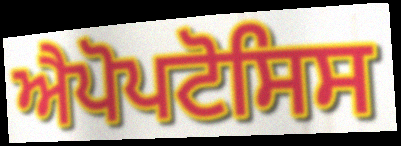
ਐਪੋਪਟੋਸਿਸ